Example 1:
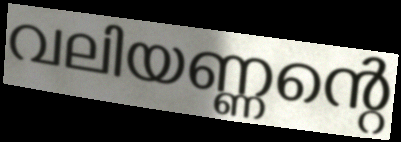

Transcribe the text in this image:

വലിയണ്ണന്റെ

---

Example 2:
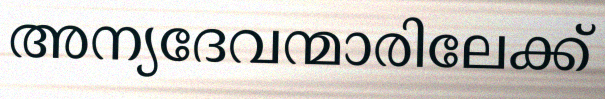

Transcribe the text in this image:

അന്യദേവന്മാരിലേക്ക്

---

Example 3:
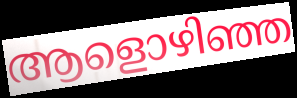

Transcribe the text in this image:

ആളൊഴിഞ്ഞ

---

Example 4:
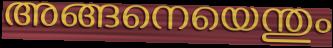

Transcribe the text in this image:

അങ്ങനെയെന്തും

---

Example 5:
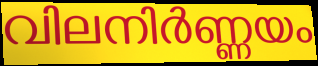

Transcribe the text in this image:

വിലനിർണ്ണയം